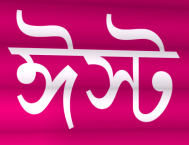
ঈস্ট